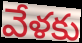
వేళకు